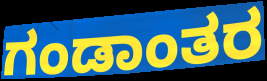
ಗಂಡಾಂತರ